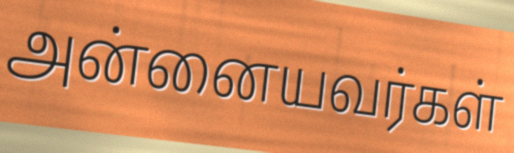
அன்னையவர்கள்